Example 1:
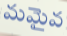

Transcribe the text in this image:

మమైవ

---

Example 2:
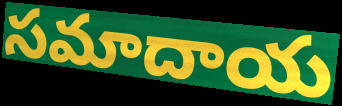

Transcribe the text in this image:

సమాదాయ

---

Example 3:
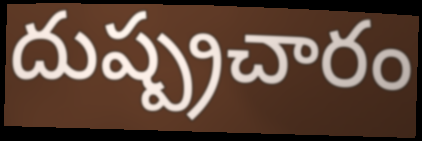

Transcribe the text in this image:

దుష్ప్రచారం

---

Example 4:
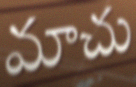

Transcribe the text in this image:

మాచు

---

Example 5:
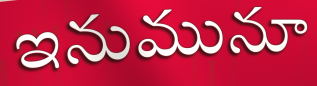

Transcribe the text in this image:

ఇనుమునూ